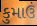
કુમાઉં